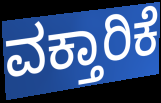
ವಕ್ತಾರಿಕೆ